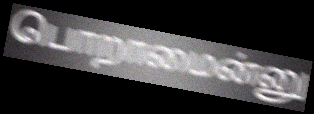
பொறாமைன்னு